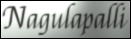
Nagulapalli